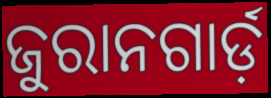
ଜୁରାନଗାର୍ଡ଼